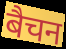
बैचन